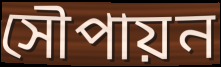
সৌপায়ন